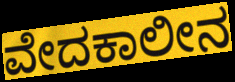
ವೇದಕಾಲೀನ